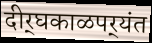
दीर्घकाळपर्यंत